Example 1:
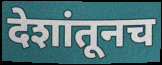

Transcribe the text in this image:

देशांतूनच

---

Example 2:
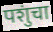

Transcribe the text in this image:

पशुंचा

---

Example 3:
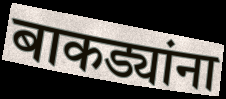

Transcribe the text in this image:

बाकड्यांना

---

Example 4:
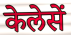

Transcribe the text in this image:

केलेसें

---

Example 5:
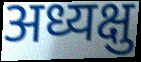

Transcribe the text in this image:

अध्यक्षु